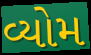
વ્યોમ